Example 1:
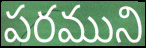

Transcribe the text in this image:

పరముని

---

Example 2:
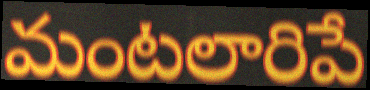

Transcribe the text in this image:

మంటలారిపే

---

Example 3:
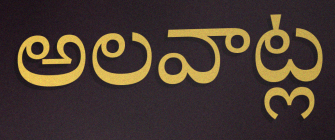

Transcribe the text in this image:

అలవాట్ల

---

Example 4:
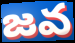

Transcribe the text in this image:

జవ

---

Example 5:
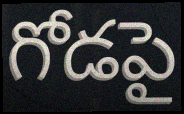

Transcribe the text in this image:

గోడపై